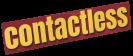
contactless